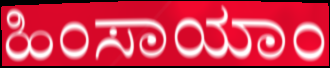
ಹಿಂಸಾಯಾಂ